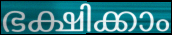
ഭക്ഷിക്കാം